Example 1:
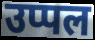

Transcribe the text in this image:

उप्पल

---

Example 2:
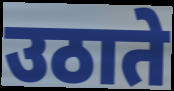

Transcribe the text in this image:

उठाते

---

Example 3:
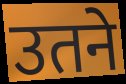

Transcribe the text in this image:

उतने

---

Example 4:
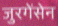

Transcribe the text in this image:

जुरगेंसेन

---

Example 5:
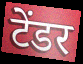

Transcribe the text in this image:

टेंडर